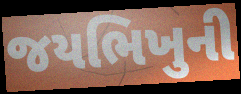
જયભિખુની